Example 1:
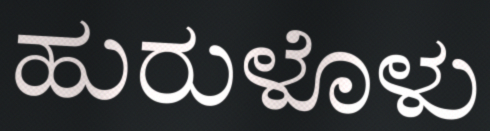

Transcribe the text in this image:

ಹುರುಳೊಳು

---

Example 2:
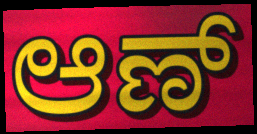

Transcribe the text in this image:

ಆಣ್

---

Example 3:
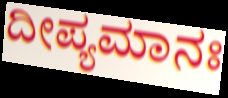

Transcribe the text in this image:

ದೀಪ್ಯಮಾನಃ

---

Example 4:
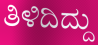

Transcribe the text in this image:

ತಿಳಿದಿದ್ದು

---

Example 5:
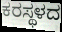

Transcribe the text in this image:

ಕರಸ್ಥಳದ